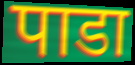
पाडा